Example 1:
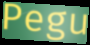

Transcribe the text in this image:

Pegu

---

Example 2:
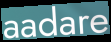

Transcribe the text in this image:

aadare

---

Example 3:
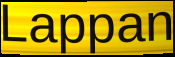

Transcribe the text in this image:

Lappan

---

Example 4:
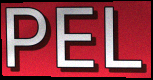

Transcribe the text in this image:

PEL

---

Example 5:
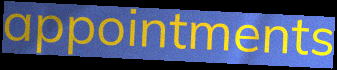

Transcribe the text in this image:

appointments